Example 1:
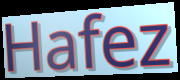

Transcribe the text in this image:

Hafez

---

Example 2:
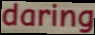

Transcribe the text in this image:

daring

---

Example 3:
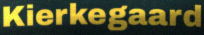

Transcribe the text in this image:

Kierkegaard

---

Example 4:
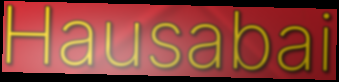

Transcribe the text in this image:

Hausabai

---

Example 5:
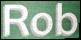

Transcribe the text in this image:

Rob